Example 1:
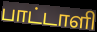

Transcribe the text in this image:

பாட்டாளி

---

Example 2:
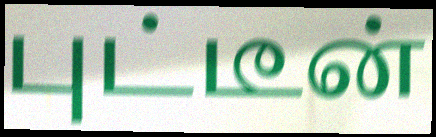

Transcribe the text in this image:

புட்டீன்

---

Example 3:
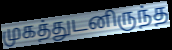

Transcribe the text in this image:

முகத்துடனிருந்த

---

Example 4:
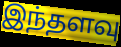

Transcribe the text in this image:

இந்தளவு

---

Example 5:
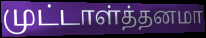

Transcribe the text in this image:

முட்டாள்த்தனமா